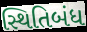
સ્થિતિબંધ